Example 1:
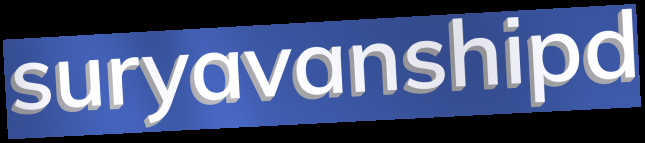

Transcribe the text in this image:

suryavanshipd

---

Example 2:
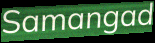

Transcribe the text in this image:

Samangad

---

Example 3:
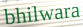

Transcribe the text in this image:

bhilwara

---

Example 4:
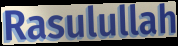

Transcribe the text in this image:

Rasulullah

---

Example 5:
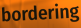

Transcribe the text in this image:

bordering